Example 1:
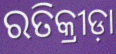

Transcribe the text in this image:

ରତିକ୍ରୀଡ଼ା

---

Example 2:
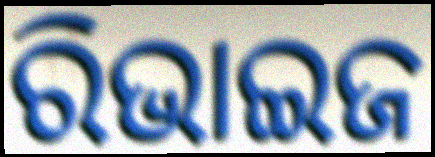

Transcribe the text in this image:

ରିଭାଇଜ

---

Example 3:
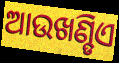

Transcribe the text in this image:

ଆଉଖଣ୍ଡିଏ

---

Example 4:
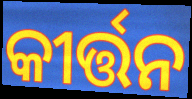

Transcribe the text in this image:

କୀର୍ତ୍ତନ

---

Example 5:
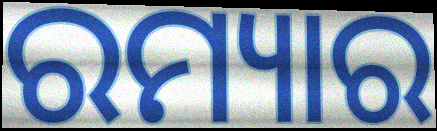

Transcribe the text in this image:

ରମ୍ୟାର